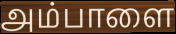
அம்பாளை